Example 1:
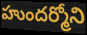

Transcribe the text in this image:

హుందర్మోని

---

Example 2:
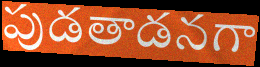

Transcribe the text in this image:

పుడతాడనగా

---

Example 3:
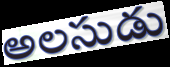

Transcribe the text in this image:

అలసుడు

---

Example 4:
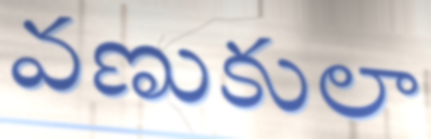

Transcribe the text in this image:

వణుకులా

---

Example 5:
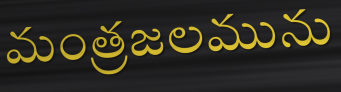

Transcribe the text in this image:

మంత్రజలమును